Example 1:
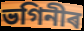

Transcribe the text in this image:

ভগিনীৰ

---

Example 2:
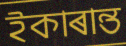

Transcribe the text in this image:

ইকাৰান্ত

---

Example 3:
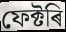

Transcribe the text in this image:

ফেক্টৰি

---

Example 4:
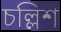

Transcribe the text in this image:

চল্লিশ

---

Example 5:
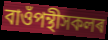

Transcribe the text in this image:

বাওঁপন্থীসকলৰ